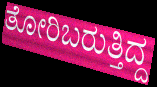
ತೋರಿಬರುತ್ತಿದ್ದ